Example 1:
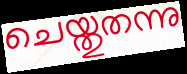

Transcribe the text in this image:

ചെയ്തുതന്നു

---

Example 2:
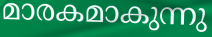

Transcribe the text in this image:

മാരകമാകുന്നു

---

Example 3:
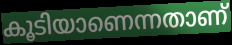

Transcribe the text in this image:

കൂടിയാണെന്നതാണ്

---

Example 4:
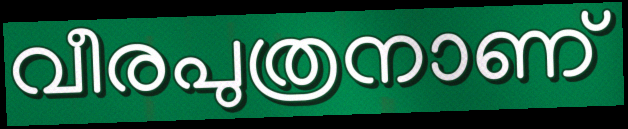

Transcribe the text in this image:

വീരപുത്രനാണ്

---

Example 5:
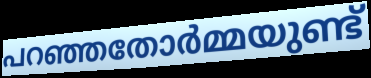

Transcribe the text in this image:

പറഞ്ഞതോർമ്മയുണ്ട്